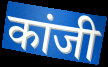
कांजी